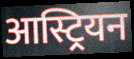
आस्ट्रियन